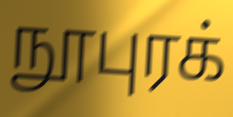
நூபுரக்